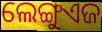
ଲେଙ୍ଗୁଏଜ